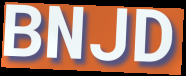
BNJD